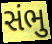
સંભુ